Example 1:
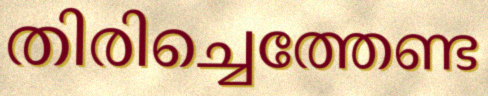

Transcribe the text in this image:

തിരിച്ചെത്തേണ്ട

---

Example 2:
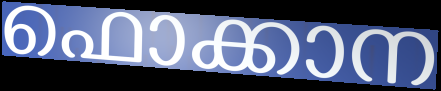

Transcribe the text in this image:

ഫൊക്കാന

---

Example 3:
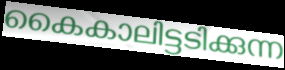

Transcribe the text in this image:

കൈകാലിട്ടടിക്കുന്ന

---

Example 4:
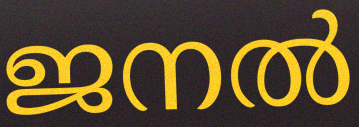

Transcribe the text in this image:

ജനൽ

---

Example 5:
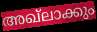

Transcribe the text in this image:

അഖ്ലാക്കും